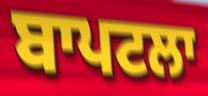
ਬਾਪਟਲਾ